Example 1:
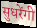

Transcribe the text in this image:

सुधरेंगी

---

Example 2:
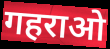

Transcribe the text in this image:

गहराओ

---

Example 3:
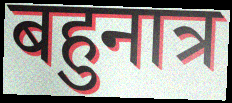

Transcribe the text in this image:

बहुनात्र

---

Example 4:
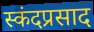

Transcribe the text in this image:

स्कंदप्रसाद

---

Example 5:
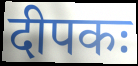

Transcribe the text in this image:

दीपकः